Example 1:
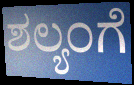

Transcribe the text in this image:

ಶಲ್ಯಂಗೆ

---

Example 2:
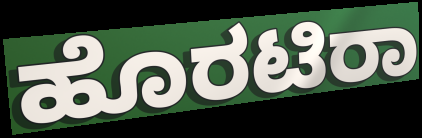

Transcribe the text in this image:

ಹೊರಟಿರಾ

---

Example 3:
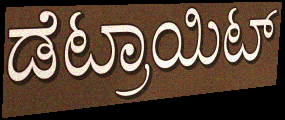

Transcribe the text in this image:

ಡೆಟ್ರಾಯಿಟ್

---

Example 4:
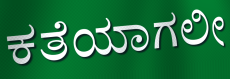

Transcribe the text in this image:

ಕತೆಯಾಗಲೀ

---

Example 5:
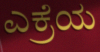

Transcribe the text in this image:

ಎಕ್ರೆಯ